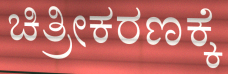
ಚಿತ್ರೀಕರಣಕ್ಕೆ